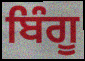
ਬਿੰਗੂ